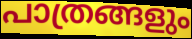
പാത്രങ്ങളും